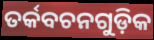
ତର୍କବଚନଗୁଡ଼ିକ